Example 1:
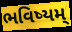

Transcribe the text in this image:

ભવિષ્યમ્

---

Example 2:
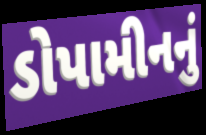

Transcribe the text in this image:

ડોપામીનનું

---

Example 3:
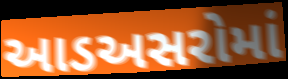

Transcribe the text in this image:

આડઅસરોમાં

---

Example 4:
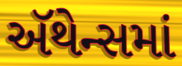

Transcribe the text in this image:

ઍથેન્સમાં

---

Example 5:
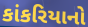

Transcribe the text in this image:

કાંકરિયાનો